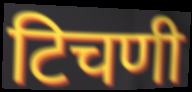
टिचणी